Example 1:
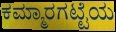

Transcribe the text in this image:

ಕಮ್ಮಾರಗಟ್ಟೆಯ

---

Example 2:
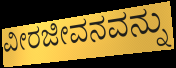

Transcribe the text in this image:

ವೀರಜೀವನವನ್ನು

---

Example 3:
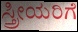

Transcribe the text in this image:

ಸ್ತ್ರೀಯರಿಗೆ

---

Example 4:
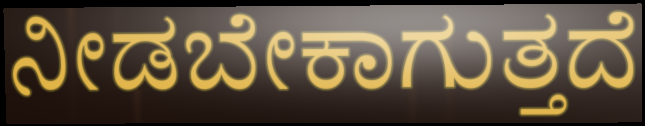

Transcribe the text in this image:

ನೀಡಬೇಕಾಗುತ್ತದೆ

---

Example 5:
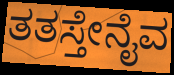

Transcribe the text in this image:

ತತಸ್ತೇನೈವ